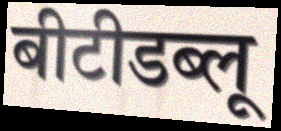
बीटीडब्लू